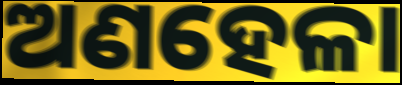
ଅଣହେଳା